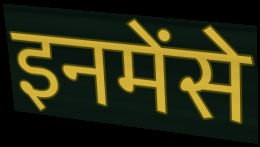
इनमेंसे